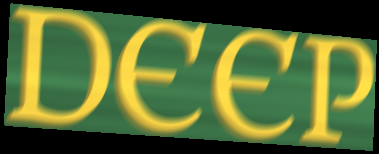
DEEP